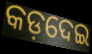
କଡ଼ଦେଇ